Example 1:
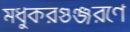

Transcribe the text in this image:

মধুকরগুঞ্জরণে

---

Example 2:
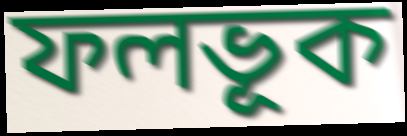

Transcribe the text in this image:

ফলভূক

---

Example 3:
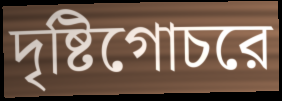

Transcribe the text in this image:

দৃষ্টিগোচরে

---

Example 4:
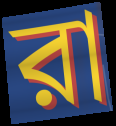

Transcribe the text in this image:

রা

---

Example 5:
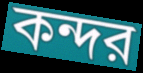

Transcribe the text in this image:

কন্দর